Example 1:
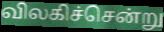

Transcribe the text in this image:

விலகிச்சென்று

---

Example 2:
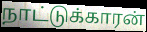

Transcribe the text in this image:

நாட்டுக்காரன்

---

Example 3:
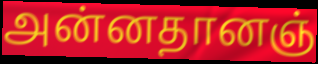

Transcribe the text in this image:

அன்னதானஞ்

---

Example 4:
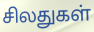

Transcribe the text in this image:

சிலதுகள்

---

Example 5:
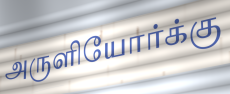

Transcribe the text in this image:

அருளியோர்க்கு